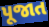
પૂજાત